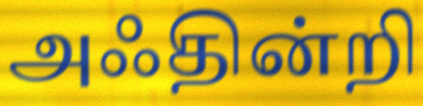
அஃதின்றி